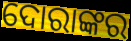
ଦୋରାଙ୍କର